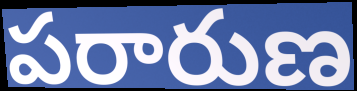
పరారుణ